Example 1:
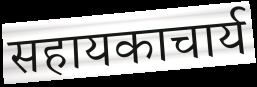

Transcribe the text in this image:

सहायकाचार्य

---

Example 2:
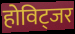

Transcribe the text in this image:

होविट्जर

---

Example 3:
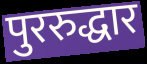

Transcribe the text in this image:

पुररुद्धार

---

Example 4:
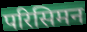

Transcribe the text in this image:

परिसिमन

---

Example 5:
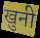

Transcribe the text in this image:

खुनी